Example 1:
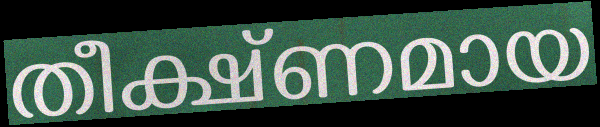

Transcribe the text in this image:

തീക്ഷ്‌ണമായ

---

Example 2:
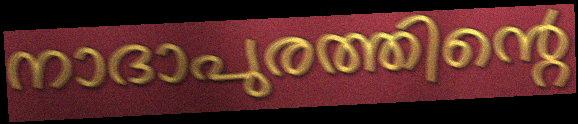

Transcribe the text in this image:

നാദാപുരത്തിന്റെ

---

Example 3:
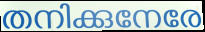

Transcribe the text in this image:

തനിക്കുനേരേ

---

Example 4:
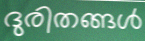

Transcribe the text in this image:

ദുരിതങ്ങൾ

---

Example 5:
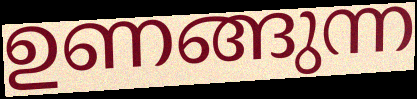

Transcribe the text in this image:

ഉണങ്ങുന്ന